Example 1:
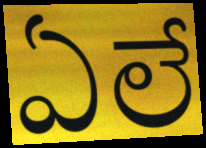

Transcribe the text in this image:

ఏలే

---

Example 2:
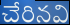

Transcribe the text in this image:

చేరినవి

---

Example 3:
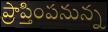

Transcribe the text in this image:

ప్రాప్తింపనున్న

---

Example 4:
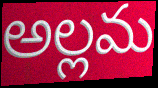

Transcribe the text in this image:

అల్లమ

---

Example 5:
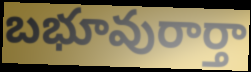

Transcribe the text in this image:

బభూవురార్తా